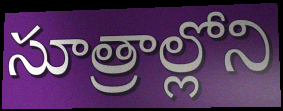
సూత్రాల్లోని